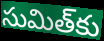
సుమిత్‌కు